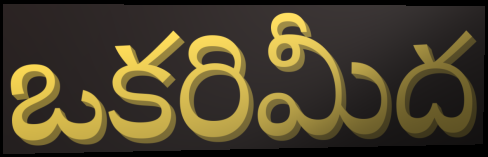
ఒకరిమీద